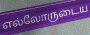
எல்லோருடைய